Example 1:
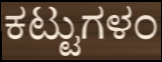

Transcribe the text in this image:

ಕಟ್ಟುಗಳಂ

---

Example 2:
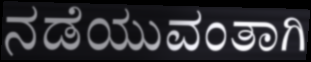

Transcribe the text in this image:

ನಡೆಯುವಂತಾಗಿ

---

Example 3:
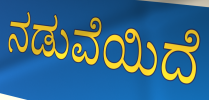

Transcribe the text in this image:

ನಡುವೆಯಿದೆ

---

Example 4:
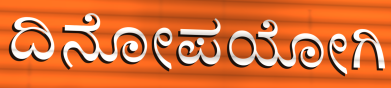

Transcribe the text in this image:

ದಿನೋಪಯೋಗಿ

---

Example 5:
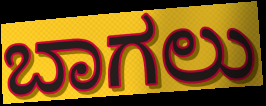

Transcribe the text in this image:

ಬಾಗಲು